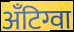
अँटिग्वा